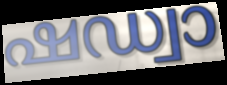
ഷഡ്വാ